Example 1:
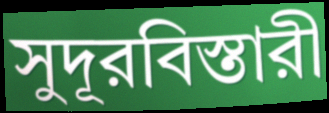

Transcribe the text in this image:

সুদূরবিস্তারী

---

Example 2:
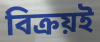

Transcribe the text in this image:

বিক্রয়ই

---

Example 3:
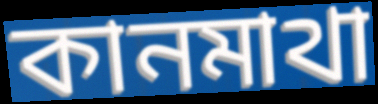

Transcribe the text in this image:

কানমাথা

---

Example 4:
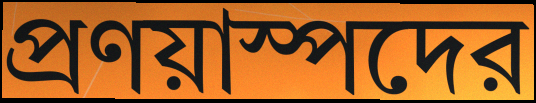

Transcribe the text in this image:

প্রণয়াস্পদের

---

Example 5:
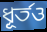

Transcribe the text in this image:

ধূর্তও